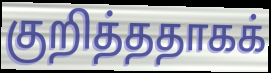
குறித்ததாகக்